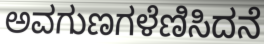
ಅವಗುಣಗಳೆಣಿಸಿದನೆ